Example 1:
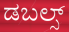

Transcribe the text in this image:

ಡಬಲ್ಸ್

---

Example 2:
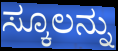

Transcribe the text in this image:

ಸ್ಕೂಲನ್ನು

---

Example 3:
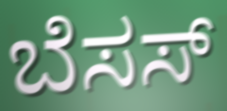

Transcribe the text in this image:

ಬೆಸಸ್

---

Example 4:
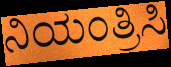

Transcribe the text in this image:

ನಿಯಂತ್ರಿಸಿ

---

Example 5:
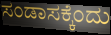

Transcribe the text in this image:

ಸಂಡಾಸಕ್ಕೆಂದು